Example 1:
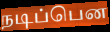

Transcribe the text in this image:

நடிப்பென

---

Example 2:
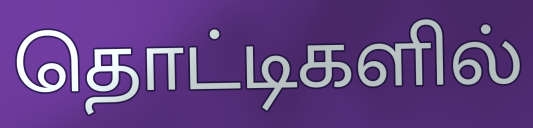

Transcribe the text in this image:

தொட்டிகளில்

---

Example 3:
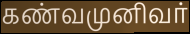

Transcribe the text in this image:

கண்வமுனிவர்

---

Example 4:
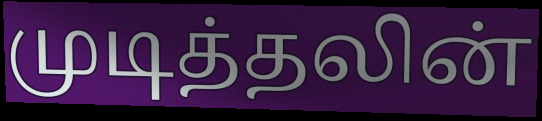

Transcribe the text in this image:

முடித்தலின்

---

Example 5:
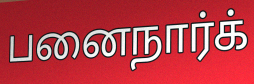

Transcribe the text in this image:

பனைநார்க்